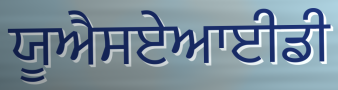
ਯੂਐਸਏਆਈਡੀ